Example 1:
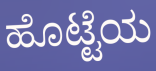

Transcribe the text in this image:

ಹೊಟ್ಟೆಯ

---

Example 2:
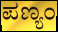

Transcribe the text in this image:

ಪಣ್ಯಂ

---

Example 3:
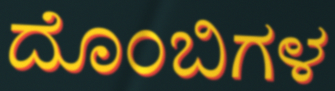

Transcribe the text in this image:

ದೊಂಬಿಗಳ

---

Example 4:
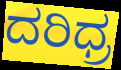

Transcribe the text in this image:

ದರಿಧ್ರ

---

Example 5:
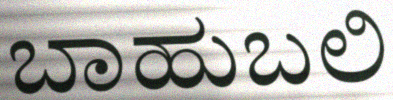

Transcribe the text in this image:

ಬಾಹುಬಲಿ